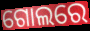
ଗୋଲରେ